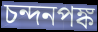
চন্দনপঙ্ক